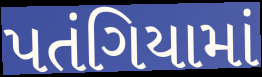
પતંગિયામાં